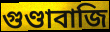
গুণ্ডাবাজি